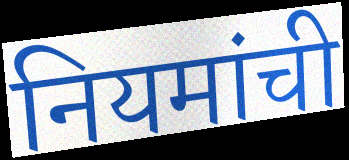
नियमांची